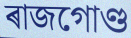
ৰাজগোণ্ড